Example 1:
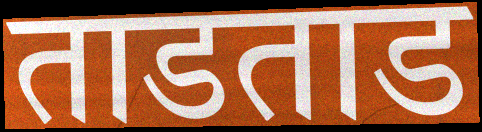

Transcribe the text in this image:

ताडताड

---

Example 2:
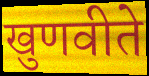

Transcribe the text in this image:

खुणवीते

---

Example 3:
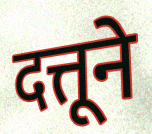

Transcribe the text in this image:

दत्तूने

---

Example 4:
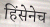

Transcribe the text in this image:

हिंसेनेच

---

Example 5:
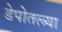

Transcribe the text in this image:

डेपोतल्या